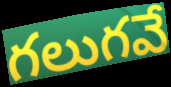
గలుగవే